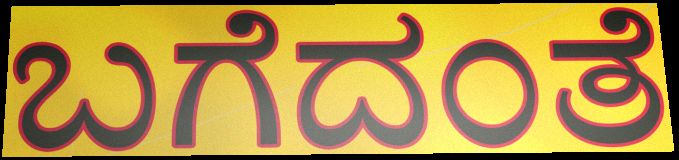
ಬಗೆದಂತೆ